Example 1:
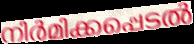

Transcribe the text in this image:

നിർമിക്കപ്പെടൽ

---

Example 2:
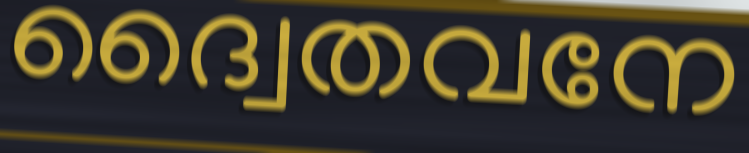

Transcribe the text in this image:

ദ്വൈതവനേ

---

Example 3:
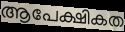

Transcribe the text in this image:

ആപേക്ഷികത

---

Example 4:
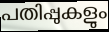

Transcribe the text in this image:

പതിപ്പുകളും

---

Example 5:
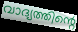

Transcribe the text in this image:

വാദ്യത്തിന്റെ